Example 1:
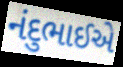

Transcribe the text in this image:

નંદુભાઈએ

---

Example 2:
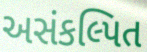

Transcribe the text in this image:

અસંકલ્પિત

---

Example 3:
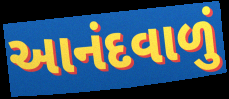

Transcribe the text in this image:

આનંદવાળું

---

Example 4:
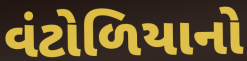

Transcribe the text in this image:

વંટોળિયાનો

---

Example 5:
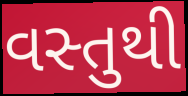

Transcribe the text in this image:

વસ્તુથી